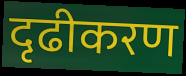
दृढीकरण